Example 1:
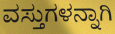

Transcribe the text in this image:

ವಸ್ತುಗಳನ್ನಾಗಿ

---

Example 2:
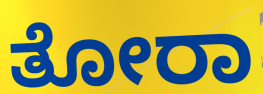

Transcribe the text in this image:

ತೋರಾ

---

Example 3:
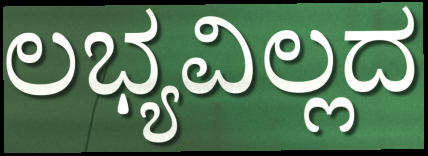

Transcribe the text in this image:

ಲಭ್ಯವಿಲ್ಲದ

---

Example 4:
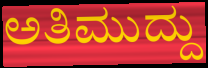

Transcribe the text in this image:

ಅತಿಮುದ್ದು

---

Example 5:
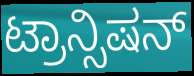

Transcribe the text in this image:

ಟ್ರಾನ್ಸಿಷನ್